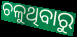
ଚଳୁଥିବାରୁ